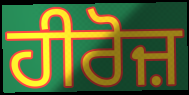
ਹੀਰੋਜ਼